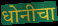
धोनीचा